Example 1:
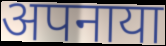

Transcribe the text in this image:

अपनाया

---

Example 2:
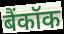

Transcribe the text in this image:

बैंकॉक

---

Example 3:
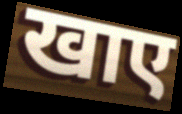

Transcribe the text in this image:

खाए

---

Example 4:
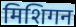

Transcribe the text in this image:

मिशिगन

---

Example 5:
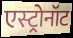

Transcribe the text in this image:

एस्‍ट्रोनॉट